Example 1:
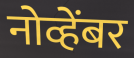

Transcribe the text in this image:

नोव्हेंबर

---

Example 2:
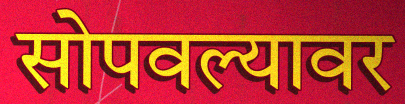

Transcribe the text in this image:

सोपवल्यावर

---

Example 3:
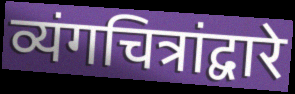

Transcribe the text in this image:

व्यंगचित्रांद्वारे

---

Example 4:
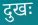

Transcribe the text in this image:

दुखः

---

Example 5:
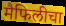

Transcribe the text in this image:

मैफिलीचा